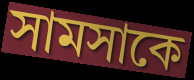
সামসাকে